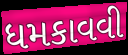
ધમકાવવી